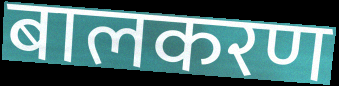
बालकरण